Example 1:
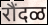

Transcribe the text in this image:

रौंदळ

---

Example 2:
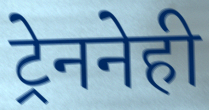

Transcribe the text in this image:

ट्रेननेही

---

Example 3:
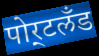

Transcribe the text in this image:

पोर्टलॅंड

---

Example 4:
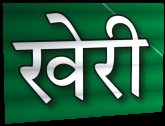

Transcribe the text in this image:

खेरी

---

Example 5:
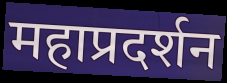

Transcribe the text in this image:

महाप्रदर्शन